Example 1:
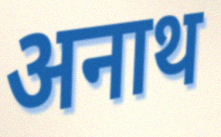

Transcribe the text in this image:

अनाथ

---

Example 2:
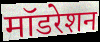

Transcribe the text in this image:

मॉडरेशन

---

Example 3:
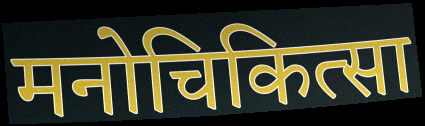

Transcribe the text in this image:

मनोचिकित्सा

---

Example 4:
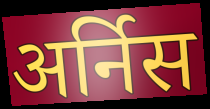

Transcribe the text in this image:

अर्निस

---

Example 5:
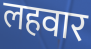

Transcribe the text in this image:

लहवार